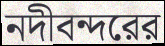
নদীবন্দরের